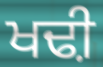
ਖਢ਼ੀ